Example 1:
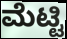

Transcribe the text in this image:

ಮೆಟ್ಟಿ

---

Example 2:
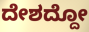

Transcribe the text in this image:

ದೇಶದ್ದೋ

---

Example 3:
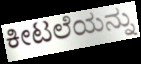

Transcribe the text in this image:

ಕೀಟಲೆಯನ್ನು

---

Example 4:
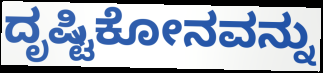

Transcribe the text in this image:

ದೃಷ್ಟಿಕೋನವನ್ನು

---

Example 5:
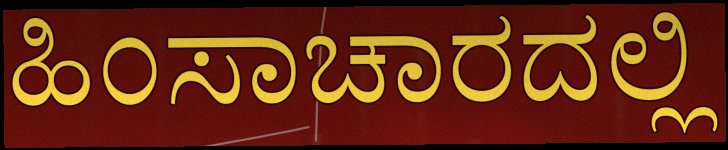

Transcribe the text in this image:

ಹಿಂಸಾಚಾರದಲ್ಲಿ